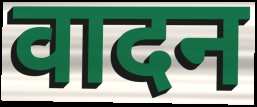
वादन